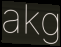
akg